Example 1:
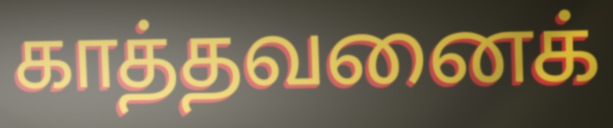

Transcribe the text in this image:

காத்தவனைக்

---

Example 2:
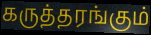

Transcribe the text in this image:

கருத்தரங்கும்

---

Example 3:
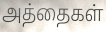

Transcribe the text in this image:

அத்தைகள்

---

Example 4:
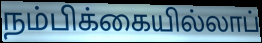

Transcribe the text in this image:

நம்பிக்கையில்லாப்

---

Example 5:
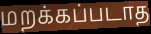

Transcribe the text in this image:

மறக்கப்படாத